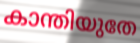
കാന്തിയുതേ